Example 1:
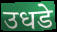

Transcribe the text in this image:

उधडे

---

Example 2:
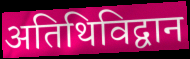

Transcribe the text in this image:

अतिथिविद्वान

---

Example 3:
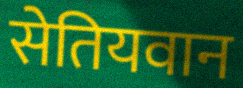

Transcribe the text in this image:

सेतियवान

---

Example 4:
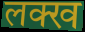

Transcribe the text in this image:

लक्ख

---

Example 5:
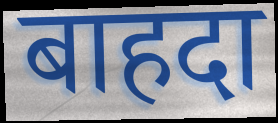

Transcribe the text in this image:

बाहदा